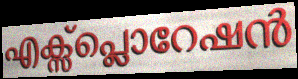
എക്സ്പ്ലൊറേഷൻ